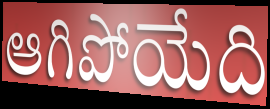
ఆగిపోయేది